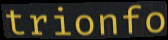
trionfo